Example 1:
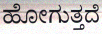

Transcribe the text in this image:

ಹೋಗುತ್ತದೆ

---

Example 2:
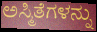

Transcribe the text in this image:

ಅಸ್ಮಿತೆಗಳನ್ನು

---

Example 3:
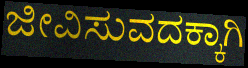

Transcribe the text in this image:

ಜೀವಿಸುವದಕ್ಕಾಗಿ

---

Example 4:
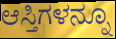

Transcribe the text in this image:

ಆಸ್ತಿಗಳನ್ನೂ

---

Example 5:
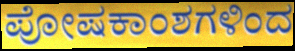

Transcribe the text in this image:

ಪೋಷಕಾಂಶಗಳಿಂದ